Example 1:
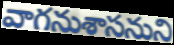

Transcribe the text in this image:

వాగనుశాసనుని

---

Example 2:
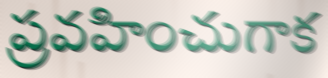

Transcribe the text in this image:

ప్రవహించుగాక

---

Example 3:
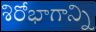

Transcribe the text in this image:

శిరోభాగాన్ని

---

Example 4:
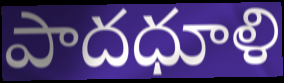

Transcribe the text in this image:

పాదధూళి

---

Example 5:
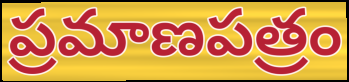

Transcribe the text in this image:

ప్రమాణపత్రం